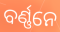
ବର୍ଣ୍ଣନେ